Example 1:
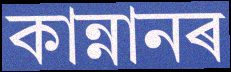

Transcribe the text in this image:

কান্নানৰ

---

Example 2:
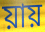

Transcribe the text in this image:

য়ায়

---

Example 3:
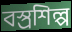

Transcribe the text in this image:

বস্ত্ৰশিল্প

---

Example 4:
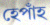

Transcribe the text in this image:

হেপাঁহ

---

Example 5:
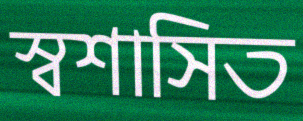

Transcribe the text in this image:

স্বশাসিত